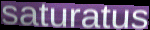
saturatus